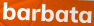
barbata